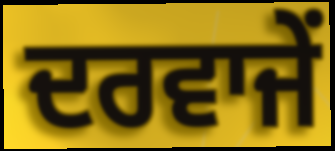
ਦਰਵਾਜੇਂ